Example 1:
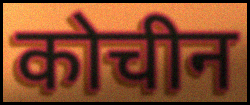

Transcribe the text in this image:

कोचीन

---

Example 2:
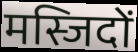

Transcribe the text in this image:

मस्‍जिदों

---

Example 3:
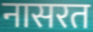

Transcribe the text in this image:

नासरत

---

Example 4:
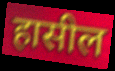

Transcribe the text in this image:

हासील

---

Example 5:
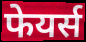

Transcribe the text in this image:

फेयर्स